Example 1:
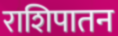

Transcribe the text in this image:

राशिपातन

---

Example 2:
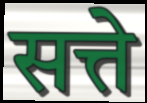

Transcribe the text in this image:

सत्ते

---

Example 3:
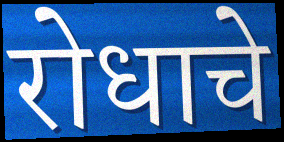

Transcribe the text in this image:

रोधाचे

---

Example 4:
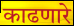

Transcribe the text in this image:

काढणारे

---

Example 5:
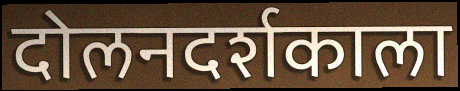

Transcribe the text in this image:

दोलनदर्शकाला